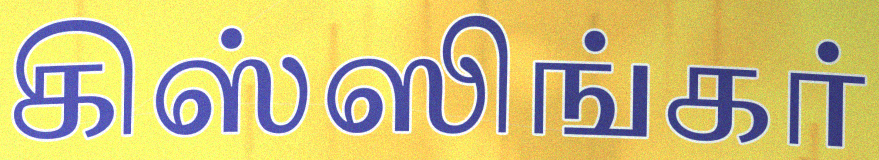
கிஸ்ஸிங்கர்